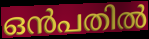
ഒൻപതിൽ